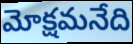
మోక్షమనేది